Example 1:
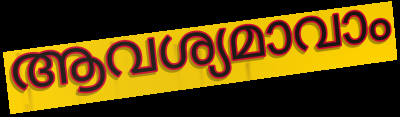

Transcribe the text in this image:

ആവശ്യമാവാം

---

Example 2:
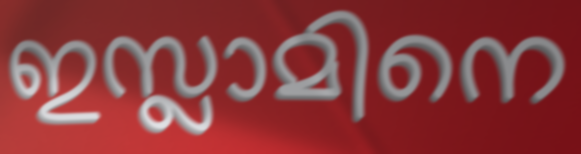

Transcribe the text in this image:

ഇസ്ലാമിനെ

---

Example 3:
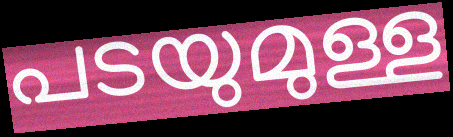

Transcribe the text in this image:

പടയുമുള്ള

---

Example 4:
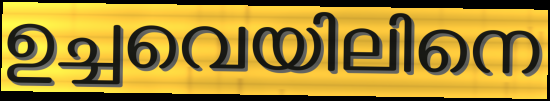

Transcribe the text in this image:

ഉച്ചവെയിലിനെ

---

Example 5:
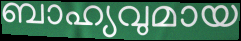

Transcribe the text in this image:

ബാഹ്യവുമായ